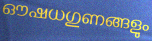
ഔഷധഗുണങ്ങളും